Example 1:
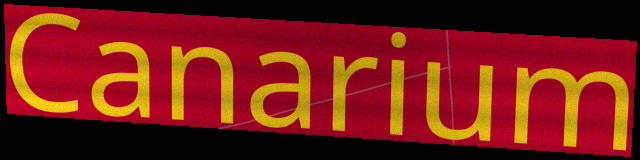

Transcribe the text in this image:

Canarium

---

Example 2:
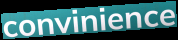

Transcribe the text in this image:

convinience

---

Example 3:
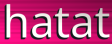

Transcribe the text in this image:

hatat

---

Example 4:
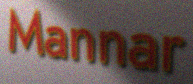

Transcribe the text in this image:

Mannar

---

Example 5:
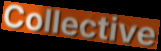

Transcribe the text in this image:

Collective